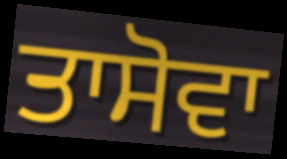
ਤਾਸੋਵਾ